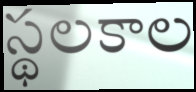
స్థలకాల